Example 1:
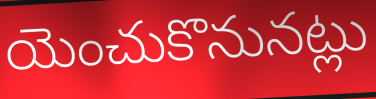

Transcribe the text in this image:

యెంచుకొనునట్లు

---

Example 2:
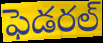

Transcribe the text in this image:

ఫెడరల్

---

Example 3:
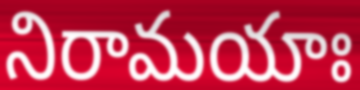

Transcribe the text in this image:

నిరామయాః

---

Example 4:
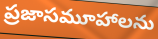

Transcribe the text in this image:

ప్రజాసమూహాలను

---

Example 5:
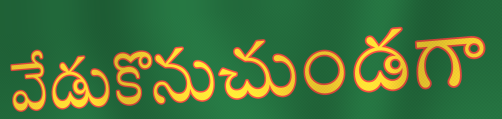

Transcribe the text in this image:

వేడుకొనుచుండగా